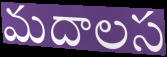
మదాలస